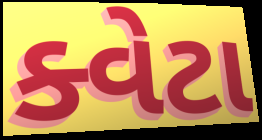
ક્વેટા